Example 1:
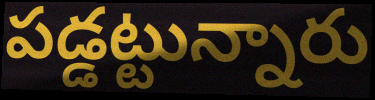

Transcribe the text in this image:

పడ్డట్టున్నారు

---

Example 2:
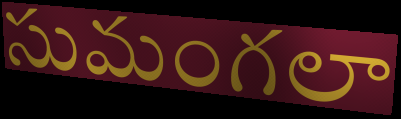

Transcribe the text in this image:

సుమంగలా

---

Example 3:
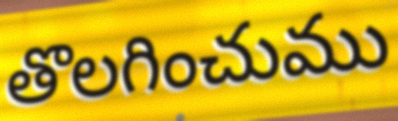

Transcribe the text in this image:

తొలగించుము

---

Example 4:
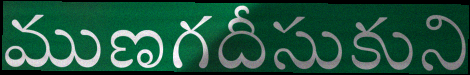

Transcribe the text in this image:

ముణగదీసుకుని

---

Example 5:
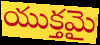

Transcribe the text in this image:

యుక్తమై